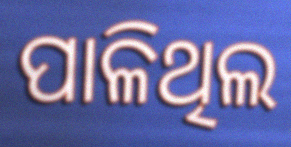
ପାଳିଥିଲ